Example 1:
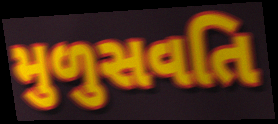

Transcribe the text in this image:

મુળુસવતિ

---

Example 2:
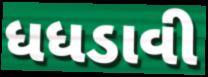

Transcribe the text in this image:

ધધડાવી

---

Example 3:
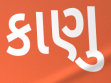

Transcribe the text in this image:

કાણુ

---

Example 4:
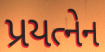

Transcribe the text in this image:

પ્રયત્નેન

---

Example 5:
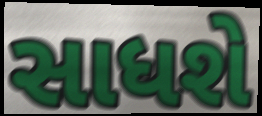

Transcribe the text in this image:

સાધશે